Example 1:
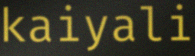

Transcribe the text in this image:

kaiyali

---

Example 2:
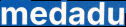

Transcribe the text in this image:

medadu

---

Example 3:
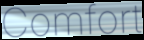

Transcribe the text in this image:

Comfort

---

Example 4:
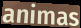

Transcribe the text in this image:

animas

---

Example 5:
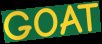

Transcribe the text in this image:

GOAT